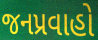
જનપ્રવાહો